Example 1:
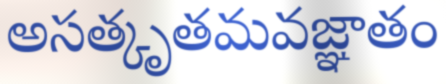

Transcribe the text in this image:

అసత్కృతమవజ్ఞాతం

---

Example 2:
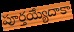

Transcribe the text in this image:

పూర్తయ్యేదాకా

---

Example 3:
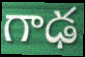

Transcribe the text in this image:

గాఢ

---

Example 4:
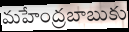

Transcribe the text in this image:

మహేంద్రబాబుకు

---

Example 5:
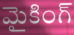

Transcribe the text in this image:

మైకింగ్